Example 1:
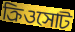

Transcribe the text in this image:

ক্রিওসোট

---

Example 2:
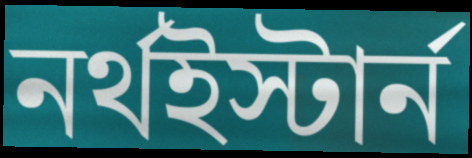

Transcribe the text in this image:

নর্থইস্টার্ন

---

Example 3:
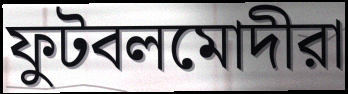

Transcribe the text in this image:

ফুটবলমোদীরা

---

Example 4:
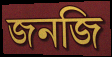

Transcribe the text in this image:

জনজি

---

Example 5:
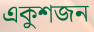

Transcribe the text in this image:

একুশজন